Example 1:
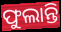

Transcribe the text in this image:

ଫୁଲାନ୍ତି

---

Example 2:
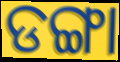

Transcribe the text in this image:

ଡଙ୍ଗା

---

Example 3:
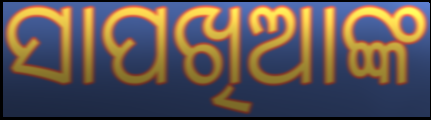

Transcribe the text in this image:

ସାପଖିଆଙ୍କ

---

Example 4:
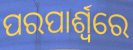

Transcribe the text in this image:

ପରପାର୍ଶ୍ୱରେ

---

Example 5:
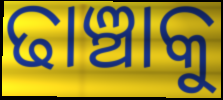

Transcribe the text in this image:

ଢାଞ୍ଚାକୁ